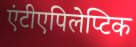
एंटीएपिलेप्टिक